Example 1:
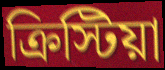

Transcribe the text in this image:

ক্রিস্টিয়া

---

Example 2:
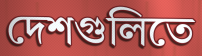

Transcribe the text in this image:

দেশগুলিতে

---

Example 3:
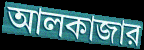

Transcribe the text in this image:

আলকাজার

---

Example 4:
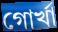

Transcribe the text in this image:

গোর্খা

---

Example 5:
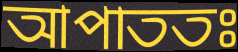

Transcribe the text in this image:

আপাততঃ